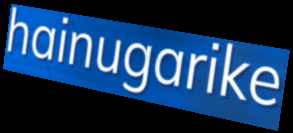
hainugarike